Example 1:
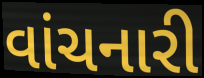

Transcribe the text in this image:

વાંચનારી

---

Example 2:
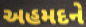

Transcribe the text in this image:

અહમદને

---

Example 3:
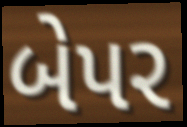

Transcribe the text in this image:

બેપર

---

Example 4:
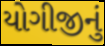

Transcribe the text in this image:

યોગીજીનું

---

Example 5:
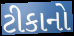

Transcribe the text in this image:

ટીકાનો